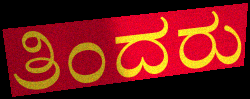
ತಿಂದರು